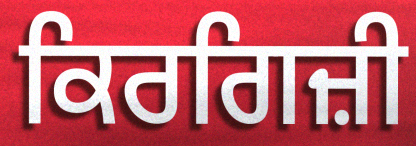
ਕਿਰਗਿਜ਼ੀ